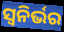
ସ୍ୱନିର୍ଭର